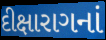
દીક્ષારાગનાં